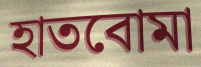
হাতবোমা